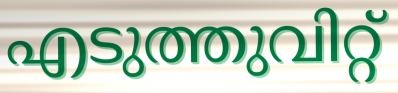
എടുത്തുവിറ്റ്